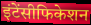
इंटेंसीफिकेशन